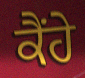
ਕੈਂਹੇ